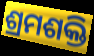
ଶ୍ରମଶକ୍ତି